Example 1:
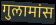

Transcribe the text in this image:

गुलामांस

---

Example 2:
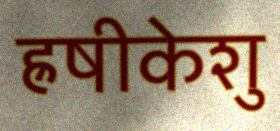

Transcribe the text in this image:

ह्रषीकेशु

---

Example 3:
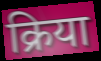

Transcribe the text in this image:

क्रिया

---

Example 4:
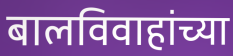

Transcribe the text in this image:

बालविवाहांच्या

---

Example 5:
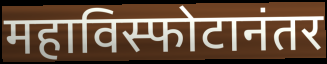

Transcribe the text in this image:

महाविस्फोटानंतर